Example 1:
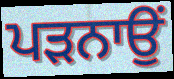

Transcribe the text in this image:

ਪਡ਼ਨਾਉਂ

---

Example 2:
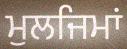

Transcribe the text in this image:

ਮੁਲਜਿਮਾਂ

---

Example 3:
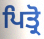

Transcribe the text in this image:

ਪਿਤ੍ਰੋ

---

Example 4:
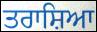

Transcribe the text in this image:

ਤਰਾਸ਼ਿਆ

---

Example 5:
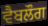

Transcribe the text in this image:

ਵੈਬਲੌਗ